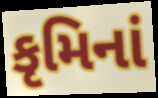
કૃમિનાં